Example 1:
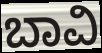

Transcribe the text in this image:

ಬಾವಿ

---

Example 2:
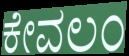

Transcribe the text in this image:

ಕೇವಲಂ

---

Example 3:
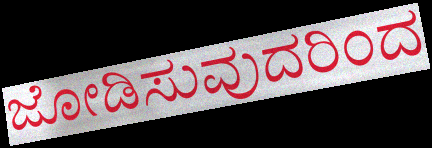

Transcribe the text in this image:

ಜೋಡಿಸುವುದರಿಂದ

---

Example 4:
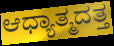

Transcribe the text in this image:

ಆಧ್ಯಾತ್ಮದತ್ತ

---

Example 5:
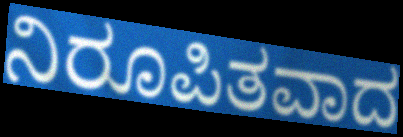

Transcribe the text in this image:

ನಿರೂಪಿತವಾದ